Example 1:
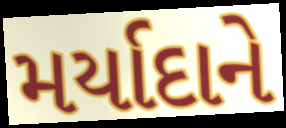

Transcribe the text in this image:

મર્યાદાને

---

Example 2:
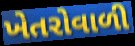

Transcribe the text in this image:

ખેતરોવાળી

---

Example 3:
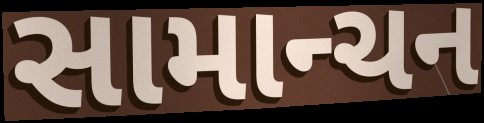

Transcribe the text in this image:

સામાન્ચન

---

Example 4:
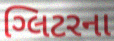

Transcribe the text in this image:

ગ્લિટરના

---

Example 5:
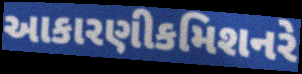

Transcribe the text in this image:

આકારણીકમિશનરે